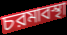
চরমাবস্থা